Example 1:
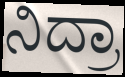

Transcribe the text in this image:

ನಿದ್ರಾ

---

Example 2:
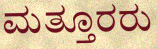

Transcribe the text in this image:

ಮತ್ತೂರರು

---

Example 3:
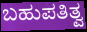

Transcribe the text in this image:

ಬಹುಪತಿತ್ವ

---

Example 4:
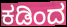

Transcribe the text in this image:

ಕಡಿಂದ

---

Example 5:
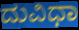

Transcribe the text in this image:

ದುವಿಧಾ